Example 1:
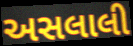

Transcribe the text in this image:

અસલાલી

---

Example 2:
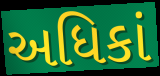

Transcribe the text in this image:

અધિકાં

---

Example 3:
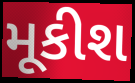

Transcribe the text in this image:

મૂકીશ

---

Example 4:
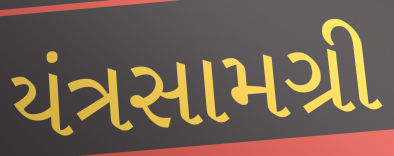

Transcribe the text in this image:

યંત્રસામગ્રી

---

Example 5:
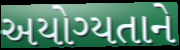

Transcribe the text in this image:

અયોગ્યતાને